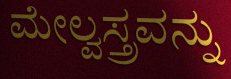
ಮೇಲ್ವಸ್ತ್ರವನ್ನು